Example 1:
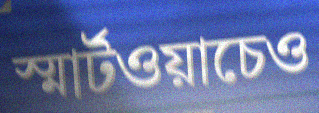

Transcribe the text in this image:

স্মার্টওয়াচেও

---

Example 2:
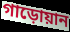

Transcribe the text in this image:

গাড়োয়ান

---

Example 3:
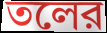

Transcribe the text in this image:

তলের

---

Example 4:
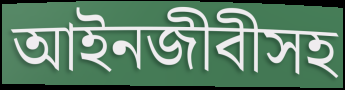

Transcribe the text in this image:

আইনজীবীসহ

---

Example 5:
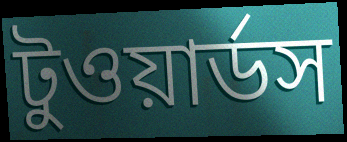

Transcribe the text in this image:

টুওয়ার্ডস